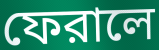
ফেরালে